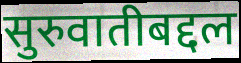
सुरुवातीबद्दल